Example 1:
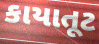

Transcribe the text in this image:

કાયાતૂટ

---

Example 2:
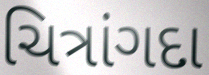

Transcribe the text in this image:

ચિત્રાંગદા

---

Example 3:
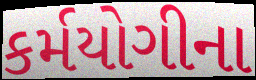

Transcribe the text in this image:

કર્મયોગીના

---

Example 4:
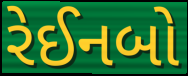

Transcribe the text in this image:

રેઈનબો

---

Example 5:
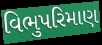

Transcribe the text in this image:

વિભુપરિમાણ